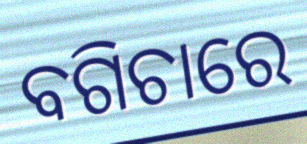
ବଗିଚାରେ